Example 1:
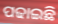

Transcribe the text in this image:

ପଢାଇଛି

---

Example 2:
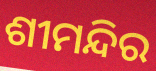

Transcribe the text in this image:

ଶୀମନ୍ଦିର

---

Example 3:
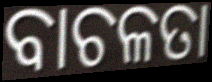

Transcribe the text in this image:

ବାଚଳତା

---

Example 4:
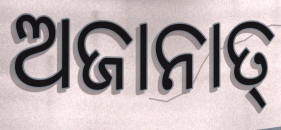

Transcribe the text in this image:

ଅଜାନାତ୍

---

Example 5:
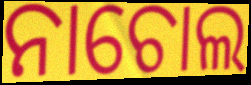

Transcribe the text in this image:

ନାଚୋଲ